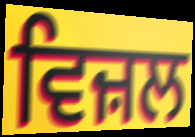
ਵਿਜ਼ਲ